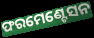
ଫରମେଣ୍ଟେସନ